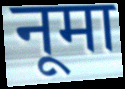
नूमा